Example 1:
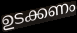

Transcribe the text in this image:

ഉടക്കണം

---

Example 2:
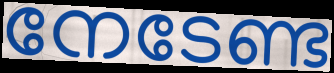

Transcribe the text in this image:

നേടേണ്ട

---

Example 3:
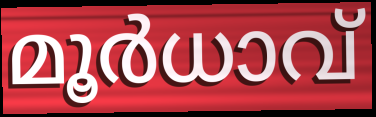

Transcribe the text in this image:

മൂർധാവ്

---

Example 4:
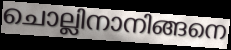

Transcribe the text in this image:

ചൊല്ലിനാനിങ്ങനെ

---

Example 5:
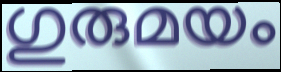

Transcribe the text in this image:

ഗുരുമയം